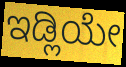
ಇಡ್ಲಿಯೇ